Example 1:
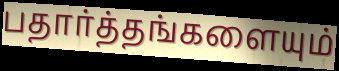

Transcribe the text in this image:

பதார்த்தங்களையும்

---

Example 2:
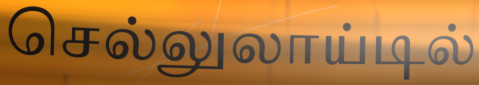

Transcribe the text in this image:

செல்லுலாய்டில்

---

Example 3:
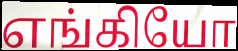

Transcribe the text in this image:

எங்கியோ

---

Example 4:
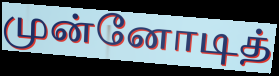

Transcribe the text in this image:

முன்னோடித்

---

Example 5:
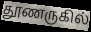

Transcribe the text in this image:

தூணருகில்